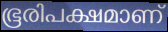
ഭൂരിപക്ഷമാണ്